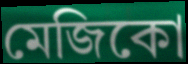
মেজিকো